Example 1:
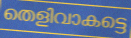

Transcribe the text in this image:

തെളിവാകട്ടെ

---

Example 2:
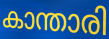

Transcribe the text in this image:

കാന്താരി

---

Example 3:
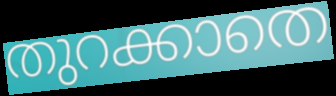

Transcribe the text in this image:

തുറക്കാതെ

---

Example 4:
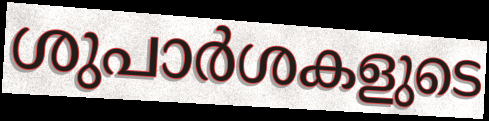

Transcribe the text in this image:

ശുപാർശകളുടെ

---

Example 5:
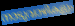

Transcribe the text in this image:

നാടുവാഴികളും